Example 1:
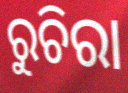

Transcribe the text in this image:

ରୁଚିରା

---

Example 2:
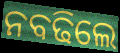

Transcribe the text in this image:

ନବଢିଲେ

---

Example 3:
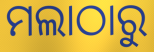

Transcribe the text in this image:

ମଲାଠାରୁ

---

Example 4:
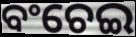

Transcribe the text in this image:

ବଂଚେଇ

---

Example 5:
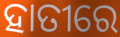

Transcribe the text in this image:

ହାତୀରେ